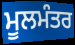
ਮੂਲਮੰਤਰ